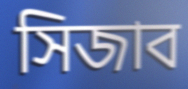
সিজাব